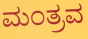
ಮಂತ್ರವ